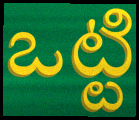
ఒట్టి